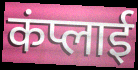
कंप्लाई